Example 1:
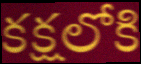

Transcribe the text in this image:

కక్షలోకి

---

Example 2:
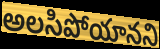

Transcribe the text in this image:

అలసిపోయానని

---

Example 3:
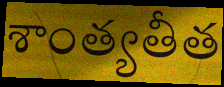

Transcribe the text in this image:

శాంత్యతీత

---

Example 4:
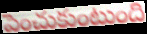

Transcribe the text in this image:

పెంచుకుంటుంది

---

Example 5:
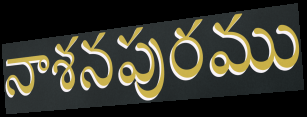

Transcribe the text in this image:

నాశనపురము